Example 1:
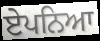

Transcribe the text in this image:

ਏਪਨਿਆ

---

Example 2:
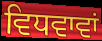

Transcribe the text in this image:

ਵਿਧਵਾਵਾਂ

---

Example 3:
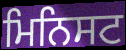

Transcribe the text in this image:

ਮਿਨਿਸਟ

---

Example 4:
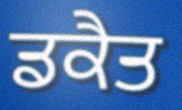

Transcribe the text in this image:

ਡਕੈਤ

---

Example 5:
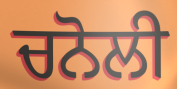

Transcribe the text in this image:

ਚਨੋਲੀ